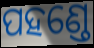
ପହଣ୍ଡେ